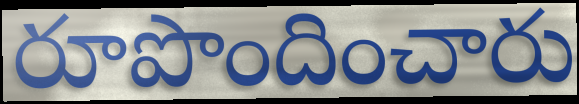
రూపొందించారు